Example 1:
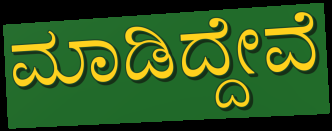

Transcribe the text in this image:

ಮಾಡಿದ್ದೇವೆ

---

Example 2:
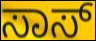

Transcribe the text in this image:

ಸಾಸ್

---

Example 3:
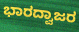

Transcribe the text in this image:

ಭಾರದ್ವಾಜರ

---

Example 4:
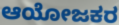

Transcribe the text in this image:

ಆಯೋಜಕರ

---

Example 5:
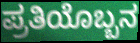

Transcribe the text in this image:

ಪ್ರತಿಯೊಬ್ಬನ